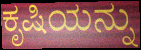
ಕೃಷಿಯನ್ನು